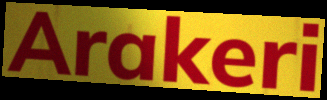
Arakeri